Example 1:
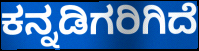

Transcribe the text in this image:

ಕನ್ನಡಿಗರಿಗಿದೆ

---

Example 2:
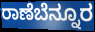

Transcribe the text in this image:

ರಾಣೆಬೆನ್ನೂರ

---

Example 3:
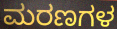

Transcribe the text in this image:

ಮರಣಗಳ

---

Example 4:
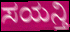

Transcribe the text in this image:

ಸಯನ್ತಿ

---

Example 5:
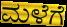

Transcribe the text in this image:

ಮಳೆಗೆ